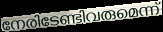
നേരിടേണ്ടിവരുമെന്ന്